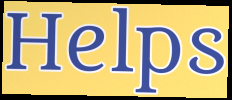
Helps